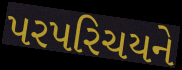
પરપરિચયને